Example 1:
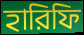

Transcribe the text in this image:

হারিফি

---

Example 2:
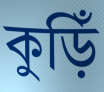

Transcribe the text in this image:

কুড়িঁ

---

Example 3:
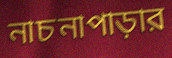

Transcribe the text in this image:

নাচনাপাড়ার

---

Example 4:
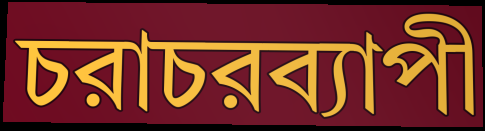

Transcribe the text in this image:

চরাচরব্যাপী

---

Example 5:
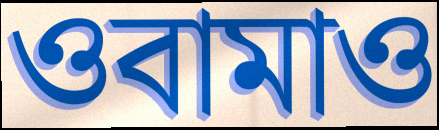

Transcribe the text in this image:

ওবামাও